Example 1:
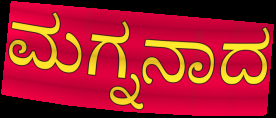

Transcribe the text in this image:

ಮಗ್ನನಾದ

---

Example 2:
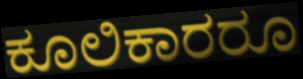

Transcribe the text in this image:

ಕೂಲಿಕಾರರೂ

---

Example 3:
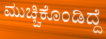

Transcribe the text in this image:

ಮುಚ್ಚಿಕೊಂಡಿದ್ದೆ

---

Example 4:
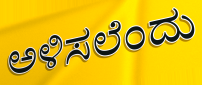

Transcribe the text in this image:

ಅಳಿಸಲೆಂದು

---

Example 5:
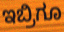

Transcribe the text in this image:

ಇಬ್ರಿಗೂ